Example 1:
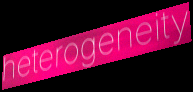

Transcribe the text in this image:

heterogeneity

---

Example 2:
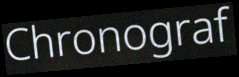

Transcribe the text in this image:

Chronograf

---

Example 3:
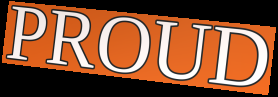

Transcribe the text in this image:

PROUD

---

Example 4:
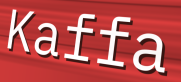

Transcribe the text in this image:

Kaffa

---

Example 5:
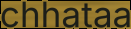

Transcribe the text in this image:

chhataa